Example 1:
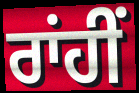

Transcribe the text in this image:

ਰਾਂਹੀਂ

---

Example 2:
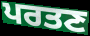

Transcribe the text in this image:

ਪਰਤਣ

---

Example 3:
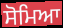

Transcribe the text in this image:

ਸੋਮਿਆ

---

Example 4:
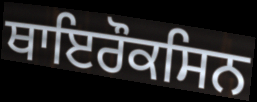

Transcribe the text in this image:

ਥਾਇਰੌਕਸਿਨ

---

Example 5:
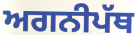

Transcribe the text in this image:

ਅਗਨੀਪੱਥ